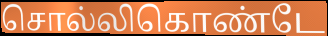
சொல்லிகொண்டே